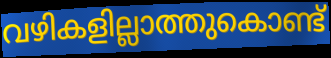
വഴികളില്ലാത്തുകൊണ്ട്